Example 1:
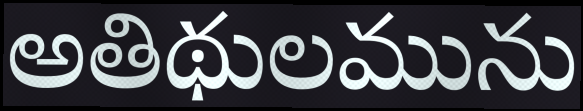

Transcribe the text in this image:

అతిథులమును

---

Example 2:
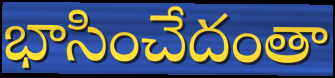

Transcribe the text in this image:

భాసించేదంతా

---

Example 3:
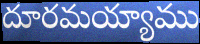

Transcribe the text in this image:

దూరమయ్యాము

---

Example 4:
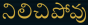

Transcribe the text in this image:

నిలిచిపోవు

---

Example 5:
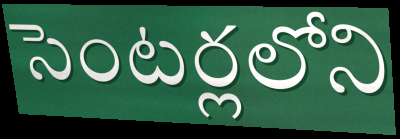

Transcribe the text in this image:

సెంటర్లలోని